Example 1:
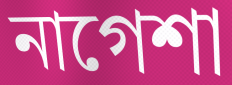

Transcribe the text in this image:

নাগেশা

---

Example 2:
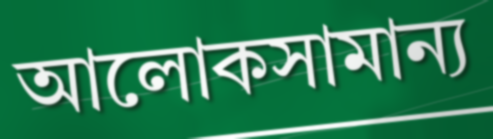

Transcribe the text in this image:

আলোকসামান্য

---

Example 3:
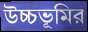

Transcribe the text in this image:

উচ্চভূমির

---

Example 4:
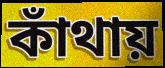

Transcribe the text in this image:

কাঁথায়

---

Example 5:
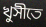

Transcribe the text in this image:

খুসীতে